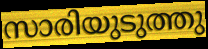
സാരിയുടുത്തു